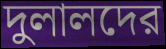
দুলালদের